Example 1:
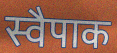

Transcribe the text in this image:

स्वैपाक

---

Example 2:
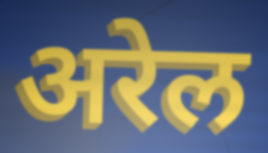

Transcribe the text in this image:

अरेल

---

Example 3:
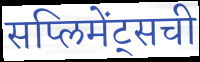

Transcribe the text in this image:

सप्लिमेंट्सची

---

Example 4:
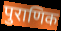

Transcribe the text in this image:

पुराणिक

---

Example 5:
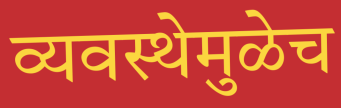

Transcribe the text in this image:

व्यवस्थेमुळेच